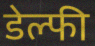
डेल्फी